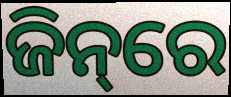
ଜିନ୍‌ରେ